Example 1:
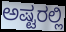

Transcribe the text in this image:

ಅಷ್ಟರಲ್ಲಿ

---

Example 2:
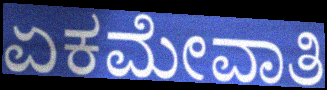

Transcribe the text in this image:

ಏಕಮೇವಾತಿ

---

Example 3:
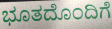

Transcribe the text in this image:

ಭೂತದೊಂದಿಗೆ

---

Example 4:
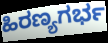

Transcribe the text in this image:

ಹಿರಣ್ಯಗರ್ಭ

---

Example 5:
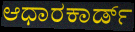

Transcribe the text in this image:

ಆಧಾರಕಾರ್ಡ್